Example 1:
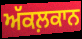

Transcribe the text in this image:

ਅੱਕਲ਼ਕਾਨ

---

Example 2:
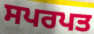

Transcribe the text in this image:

ਸਪਰਪਤ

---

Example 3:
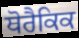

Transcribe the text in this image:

ਥੋਰੈਕਿਕ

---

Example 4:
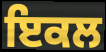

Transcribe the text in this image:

ਇਕਲ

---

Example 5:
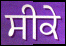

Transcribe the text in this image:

ਸੀਕੇ